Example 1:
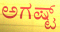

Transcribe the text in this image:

ಅಗಷ್ಟ್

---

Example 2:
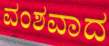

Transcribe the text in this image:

ವಂಶವಾದ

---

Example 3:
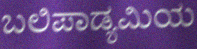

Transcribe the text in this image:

ಬಲಿಪಾಡ್ಯಮಿಯ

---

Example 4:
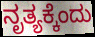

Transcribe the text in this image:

ನೃತ್ಯಕ್ಕೆಂದು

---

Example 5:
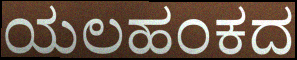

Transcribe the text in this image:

ಯಲಹಂಕದ